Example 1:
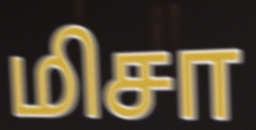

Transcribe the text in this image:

மிசா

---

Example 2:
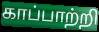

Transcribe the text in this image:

காப்பாற்றி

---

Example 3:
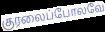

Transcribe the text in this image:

குரலைப்போலவே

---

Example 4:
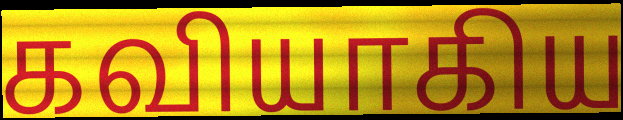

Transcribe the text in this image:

கவியாகிய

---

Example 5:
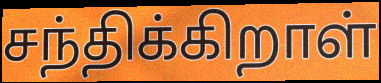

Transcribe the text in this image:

சந்திக்கிறாள்